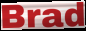
Brad